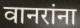
वानरांना